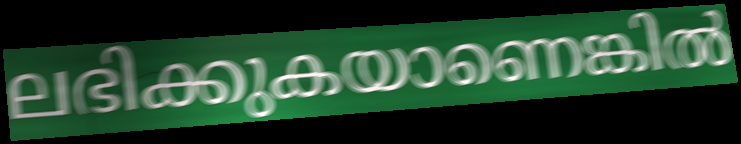
ലഭിക്കുകയാണെങ്കിൽ